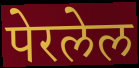
पेरलेल